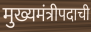
मुख्यमंत्रीपदाची